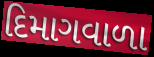
દિમાગવાળા